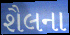
શૈલના